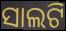
ସାଲଟି